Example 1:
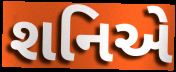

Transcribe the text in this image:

શનિએ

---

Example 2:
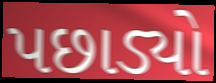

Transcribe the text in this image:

પછાડ્યો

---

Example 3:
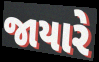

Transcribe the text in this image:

જાયારે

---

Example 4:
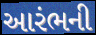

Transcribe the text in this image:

આરંભની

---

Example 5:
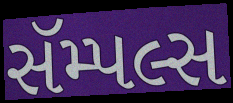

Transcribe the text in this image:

સૅમ્પલ્સ